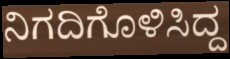
ನಿಗದಿಗೊಳಿಸಿದ್ದ